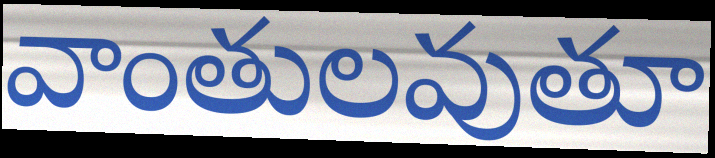
వాంతులవుతూ